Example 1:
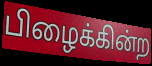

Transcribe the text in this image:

பிழைக்கின்ற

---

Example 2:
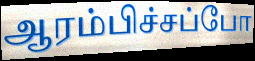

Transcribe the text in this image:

ஆரம்பிச்சப்போ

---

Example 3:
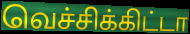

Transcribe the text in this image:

வெச்சிக்கிட்டா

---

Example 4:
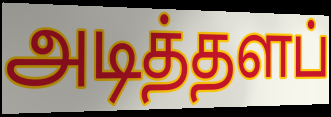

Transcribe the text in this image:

அடித்தளப்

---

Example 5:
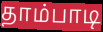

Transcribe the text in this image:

தாம்பாடி